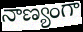
నాణ్యంగా